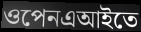
ওপেনএআইতে